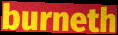
burneth